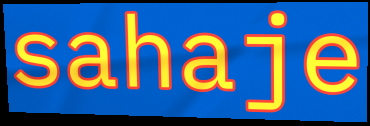
sahaje